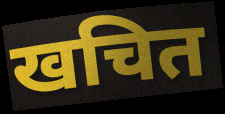
खचित